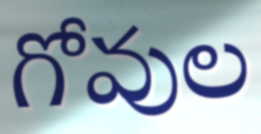
గోవుల